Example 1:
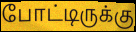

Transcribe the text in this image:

போட்டிருக்கு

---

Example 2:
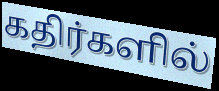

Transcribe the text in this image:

கதிர்களில்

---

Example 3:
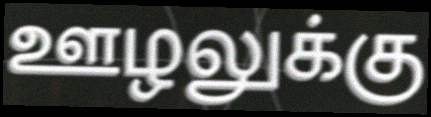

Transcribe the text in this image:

ஊழலுக்கு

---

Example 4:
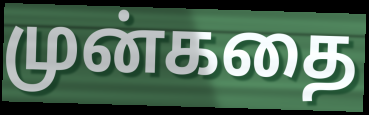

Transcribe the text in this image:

முன்கதை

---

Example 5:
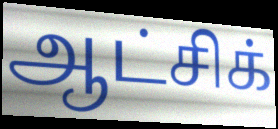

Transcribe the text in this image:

ஆட்சிக்